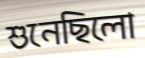
শুনেছিলো